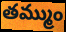
తమ్ముం